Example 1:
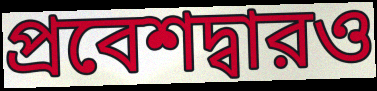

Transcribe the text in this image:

প্রবেশদ্বারও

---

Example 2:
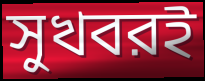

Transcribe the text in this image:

সুখবরই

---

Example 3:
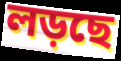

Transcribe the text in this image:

লড়ছে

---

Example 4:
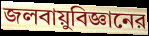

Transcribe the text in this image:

জলবায়ুবিজ্ঞানের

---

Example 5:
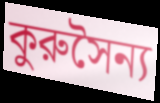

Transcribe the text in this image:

কুরুসৈন্য